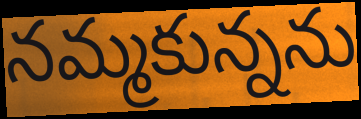
నమ్మకున్నను